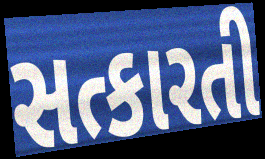
સત્કારતી